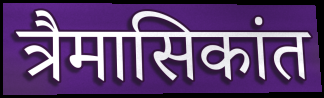
त्रैमासिकांत